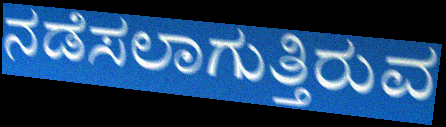
ನಡೆಸಲಾಗುತ್ತಿರುವ